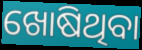
ଖୋଷିଥିବା